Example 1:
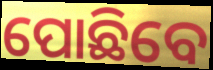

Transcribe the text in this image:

ପୋଛିବେ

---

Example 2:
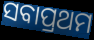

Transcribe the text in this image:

ସବାପ୍ରଥମ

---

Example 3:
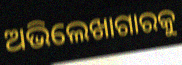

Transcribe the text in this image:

ଅଭିଲେଖାଗାରକୁ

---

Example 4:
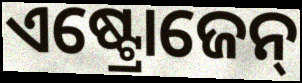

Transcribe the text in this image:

ଏଷ୍ଟ୍ରୋଜେନ୍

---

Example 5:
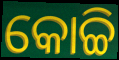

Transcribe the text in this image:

କୋଚ୍ଚି